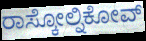
ರಾಸ್ಕೋಲ್ನಿಕೋವ್